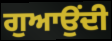
ਗੁਆਉਂਦੀ